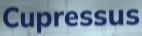
Cupressus